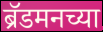
ब्रॅडमनच्या